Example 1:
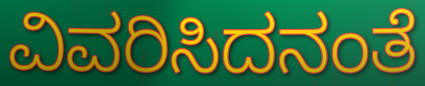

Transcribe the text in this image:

ವಿವರಿಸಿದನಂತೆ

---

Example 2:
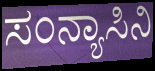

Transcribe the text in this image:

ಸಂನ್ಯಾಸಿನಿ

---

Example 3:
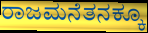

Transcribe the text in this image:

ರಾಜಮನೆತನಕ್ಕೂ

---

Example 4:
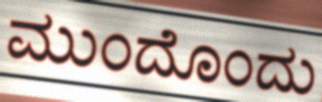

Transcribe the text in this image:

ಮುಂದೊಂದು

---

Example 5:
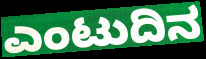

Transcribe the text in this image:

ಎಂಟುದಿನ